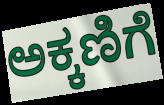
ಅಕ್ಕಣಿಗೆ